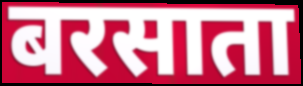
बरसाता